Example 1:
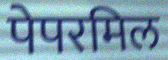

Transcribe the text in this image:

पेपरमिल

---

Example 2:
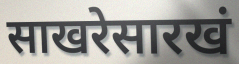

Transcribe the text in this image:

साखरेसारखं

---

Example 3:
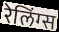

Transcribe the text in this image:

रेलिंग्स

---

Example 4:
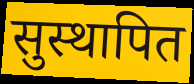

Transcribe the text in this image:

सुस्थापित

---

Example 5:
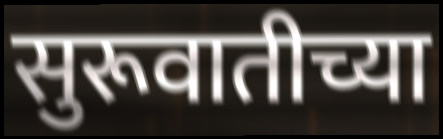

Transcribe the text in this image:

सुरूवातीच्या